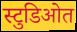
स्टुडिओत